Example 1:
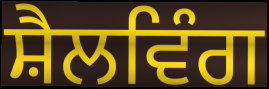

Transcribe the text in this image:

ਸ਼ੈਲਵਿੰਗ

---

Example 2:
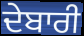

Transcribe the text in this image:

ਦੇਬਾਰੀ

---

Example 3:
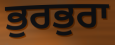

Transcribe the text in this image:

ਭੁਰਭੁਰਾ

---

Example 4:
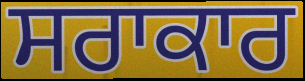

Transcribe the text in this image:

ਸਰਾਕਾਰ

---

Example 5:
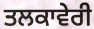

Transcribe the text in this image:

ਤਲਕਾਵੇਰੀ